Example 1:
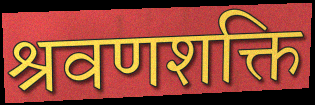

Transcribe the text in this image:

श्रवणशक्ति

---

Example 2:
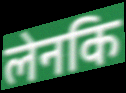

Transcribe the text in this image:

लेनकि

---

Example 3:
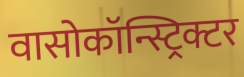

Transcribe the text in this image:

वासोकॉन्स्ट्रिक्टर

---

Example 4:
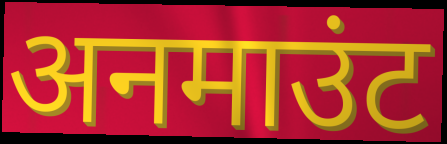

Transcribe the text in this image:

अनमाउंट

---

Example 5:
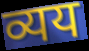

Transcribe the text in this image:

व्यय